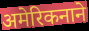
अमेरिकनाने